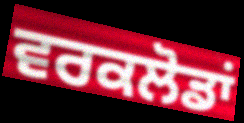
ਵਰਕਲੋਡਾਂ